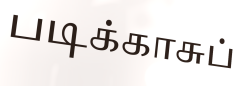
படிக்காசுப்